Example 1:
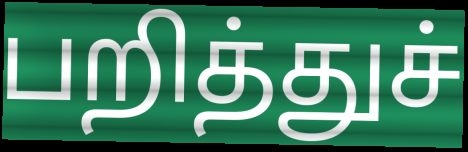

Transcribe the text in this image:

பறித்துச்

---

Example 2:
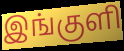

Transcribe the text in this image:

இங்குளி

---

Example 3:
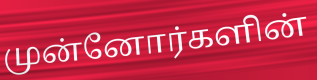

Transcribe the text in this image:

முன்னோர்களின்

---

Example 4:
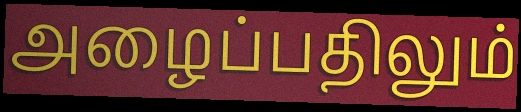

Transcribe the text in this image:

அழைப்பதிலும்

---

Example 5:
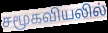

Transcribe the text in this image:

சமூகவியலில்